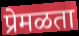
प्रेमळता